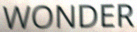
WONDER